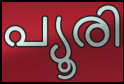
പ്യൂരി